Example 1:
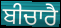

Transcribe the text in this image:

ਬੀਚਾਰੈ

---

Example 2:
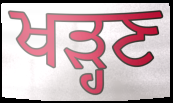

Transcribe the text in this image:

ਖੜ੍ਹਣ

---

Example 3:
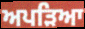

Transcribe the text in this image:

ਅਪੜਿਆ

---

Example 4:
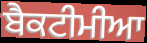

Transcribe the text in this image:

ਬੈਕਟੀਮੀਆ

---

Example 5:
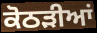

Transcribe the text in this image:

ਕੋਠੜੀਆਂ